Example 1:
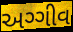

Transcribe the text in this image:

અગ્ગીવ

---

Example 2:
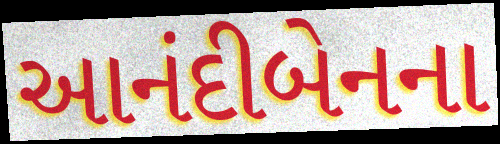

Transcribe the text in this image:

આનંદીબેનના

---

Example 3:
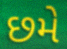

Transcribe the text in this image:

છમે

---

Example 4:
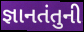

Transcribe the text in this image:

જ્ઞાનતંતુની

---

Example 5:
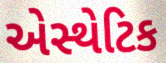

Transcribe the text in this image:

એસ્થેટિક